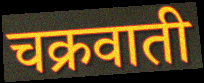
चक्रवाती